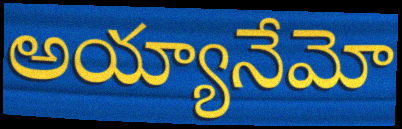
అయ్యానేమో